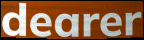
dearer